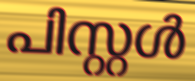
പിസ്റ്റൾ